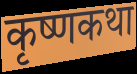
कृष्णकथा